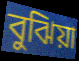
বুঝিয়া